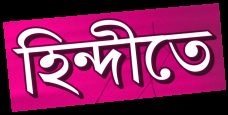
হিন্দীতে